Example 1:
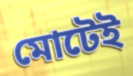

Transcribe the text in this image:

মোটেই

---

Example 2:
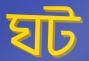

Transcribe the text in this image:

ঘট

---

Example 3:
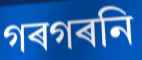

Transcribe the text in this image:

গৰগৰনি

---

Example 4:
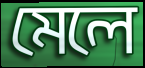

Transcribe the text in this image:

মেলে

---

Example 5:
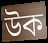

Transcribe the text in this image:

উক